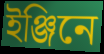
ইঞ্জিনে